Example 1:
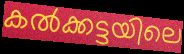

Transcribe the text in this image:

കൽക്കട്ടയിലെ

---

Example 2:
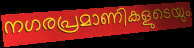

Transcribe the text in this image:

നഗരപ്രമാണികളുടെയും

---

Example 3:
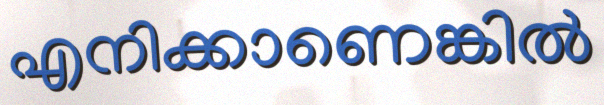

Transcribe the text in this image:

എനിക്കാണെങ്കിൽ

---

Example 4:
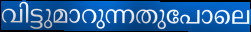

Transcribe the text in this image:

വിട്ടുമാറുന്നതുപോലെ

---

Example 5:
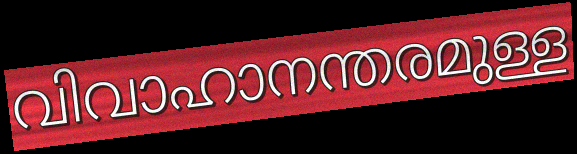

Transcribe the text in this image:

വിവാഹാനന്തരമുള്ള